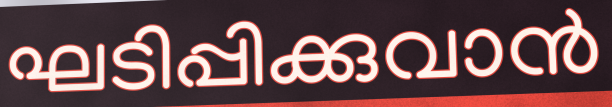
ഘടിപ്പിക്കുവാൻ